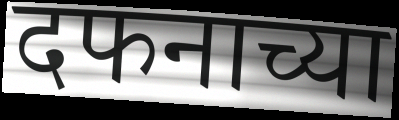
दफनाच्या